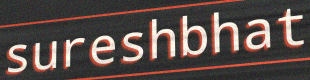
sureshbhat